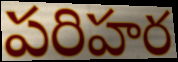
పరిహర